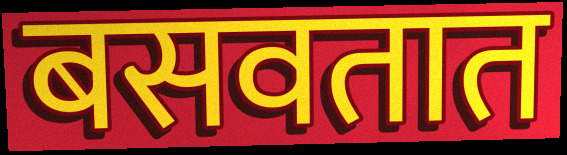
बसवतात